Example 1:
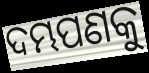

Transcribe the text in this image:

ଦମ୍ଭପଣକୁ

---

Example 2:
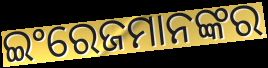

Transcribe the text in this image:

ଇଂରେଜମାନଙ୍କର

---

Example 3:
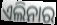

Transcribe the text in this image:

ଏଲିନାର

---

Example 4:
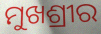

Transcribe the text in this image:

ମୁଖଶ୍ରୀର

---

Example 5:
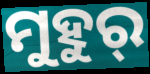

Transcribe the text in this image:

ମୁହୁର୍